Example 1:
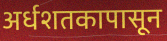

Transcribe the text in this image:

अर्धशतकापासून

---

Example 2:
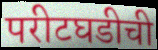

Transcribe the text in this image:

परीटघडीची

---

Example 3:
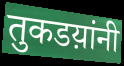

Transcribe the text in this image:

तुकडय़ांनी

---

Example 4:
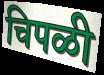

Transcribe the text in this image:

चिपळी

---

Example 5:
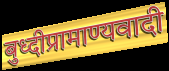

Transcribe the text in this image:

बुध्दीप्रामाण्यवादी